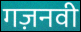
गज़नवी